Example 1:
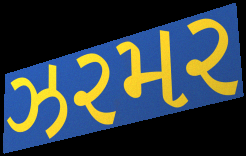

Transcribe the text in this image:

ઝરમર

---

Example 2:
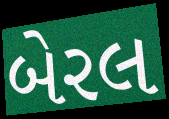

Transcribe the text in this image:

બેરલ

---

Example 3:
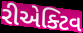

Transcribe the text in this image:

રીએક્ટિવ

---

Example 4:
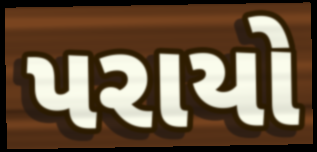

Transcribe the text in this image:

પરાયો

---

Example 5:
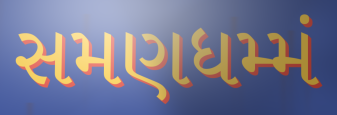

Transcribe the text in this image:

સમણધમ્મં